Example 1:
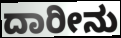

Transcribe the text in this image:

ದಾರೀನು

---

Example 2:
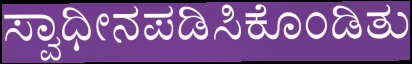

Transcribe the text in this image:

ಸ್ವಾಧೀನಪಡಿಸಿಕೊಂಡಿತು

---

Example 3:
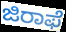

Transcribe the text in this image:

ಜಿರಾಫೆ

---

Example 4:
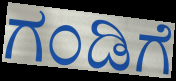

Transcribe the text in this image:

ಗಂಡಿಗೆ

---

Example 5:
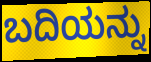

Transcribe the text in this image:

ಬದಿಯನ್ನು